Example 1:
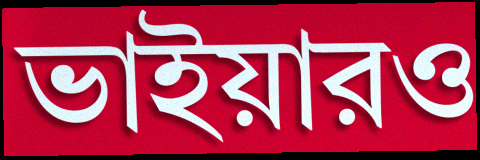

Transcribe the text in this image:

ভাইয়ারও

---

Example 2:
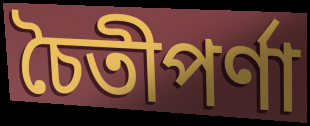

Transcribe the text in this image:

চৈতীপর্ণা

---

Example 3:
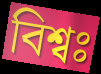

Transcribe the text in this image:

বিশ্বঃ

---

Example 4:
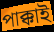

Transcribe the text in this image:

পাক্কাই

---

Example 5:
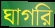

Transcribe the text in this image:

ঘাগরি